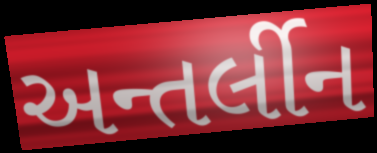
અન્તર્લીન